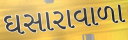
ઘસારાવાળા